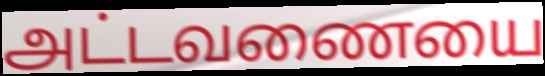
அட்டவணையை